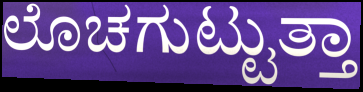
ಲೊಚಗುಟ್ಟುತ್ತಾ